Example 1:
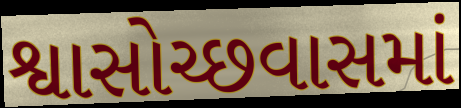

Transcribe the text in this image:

શ્વાસોચ્છવાસમાં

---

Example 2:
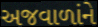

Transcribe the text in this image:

અજવાળાંને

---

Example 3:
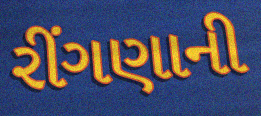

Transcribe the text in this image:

રીંગણાની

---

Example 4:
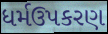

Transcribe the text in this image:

ધર્મઉપકરણ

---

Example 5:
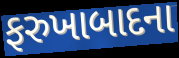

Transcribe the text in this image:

ફરુખાબાદના